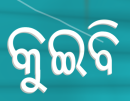
କୁଇବି